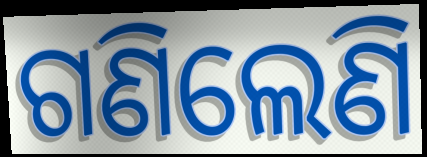
ଗଣିଲେଣି